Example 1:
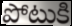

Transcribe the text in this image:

పోటుకి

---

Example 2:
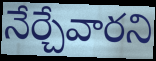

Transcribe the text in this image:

నేర్చేవారని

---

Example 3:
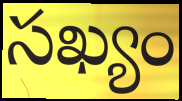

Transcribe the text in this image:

సఖ్యం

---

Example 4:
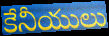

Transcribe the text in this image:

కేనీయులు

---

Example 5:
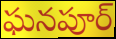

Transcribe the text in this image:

ఘనపూర్